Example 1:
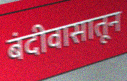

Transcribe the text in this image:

बंदीवासातून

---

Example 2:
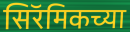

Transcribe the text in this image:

सिरॅमिकच्या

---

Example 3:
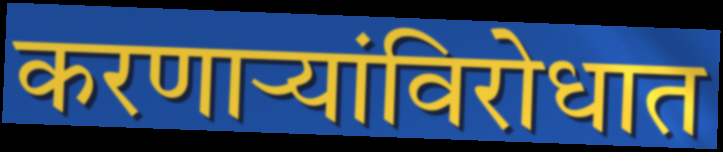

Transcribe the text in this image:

करणाऱ्यांविरोधात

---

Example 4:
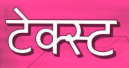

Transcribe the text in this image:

टेक्स्ट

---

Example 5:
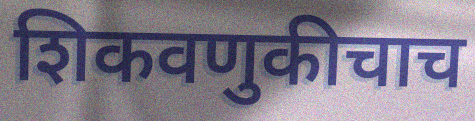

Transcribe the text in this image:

शिकवणुकीचाच